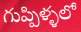
గుప్పిళ్ళలో